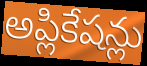
అప్లికేషన్లు